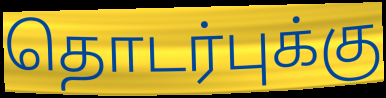
தொடர்புக்கு